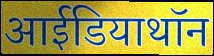
आईडियाथॉन